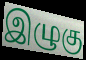
இழுகு